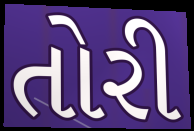
તોરી